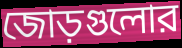
জোড়গুলোর